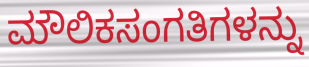
ಮೌಲಿಕಸಂಗತಿಗಳನ್ನು